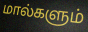
மால்களும்